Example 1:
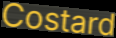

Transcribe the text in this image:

Costard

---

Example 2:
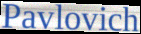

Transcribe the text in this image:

Pavlovich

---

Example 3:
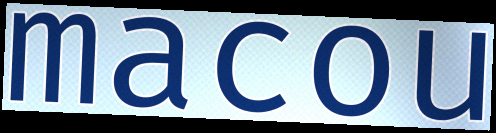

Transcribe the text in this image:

macou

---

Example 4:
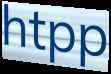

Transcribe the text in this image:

htpp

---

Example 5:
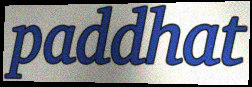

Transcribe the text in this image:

paddhat